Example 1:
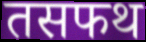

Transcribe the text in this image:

तसफथ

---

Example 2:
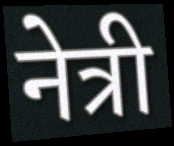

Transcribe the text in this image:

नेत्री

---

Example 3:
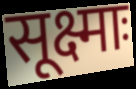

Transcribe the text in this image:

सूक्ष्माः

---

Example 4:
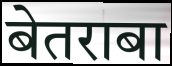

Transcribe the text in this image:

बेतराबा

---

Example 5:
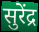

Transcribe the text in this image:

सुरेंद्र